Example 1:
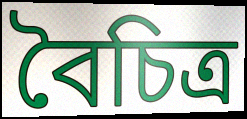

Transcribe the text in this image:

বৈচিত্র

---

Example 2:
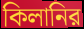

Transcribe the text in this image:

কিলানির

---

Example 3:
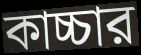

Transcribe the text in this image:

কাচ্চার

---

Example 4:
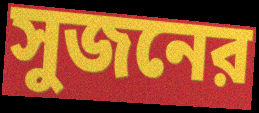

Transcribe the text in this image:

সুজনের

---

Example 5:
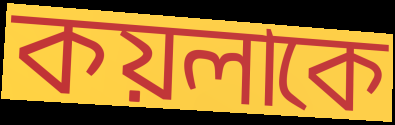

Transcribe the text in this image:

কয়লাকে